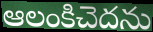
ఆలంకిచెదను